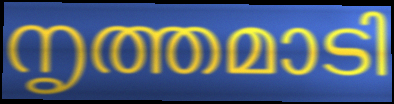
നൃത്തമാടി